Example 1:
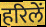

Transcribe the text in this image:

हरिलें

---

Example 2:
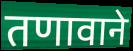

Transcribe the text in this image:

तणावाने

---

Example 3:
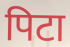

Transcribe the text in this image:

पिटा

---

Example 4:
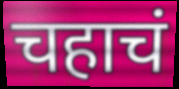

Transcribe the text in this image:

चहाचं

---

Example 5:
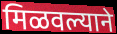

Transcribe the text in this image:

मिळवल्याने